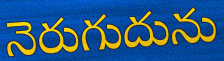
నెరుగుదును